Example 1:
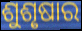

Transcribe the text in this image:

ଶୁଶୃଷାର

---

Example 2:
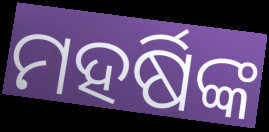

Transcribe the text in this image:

ମହର୍ଷିଙ୍କ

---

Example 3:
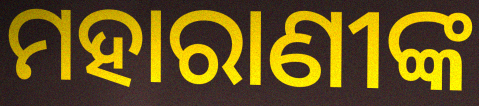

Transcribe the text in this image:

ମହାରାଣୀଙ୍କ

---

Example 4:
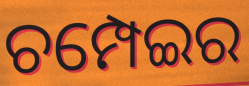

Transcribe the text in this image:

ଚମ୍ପେଇର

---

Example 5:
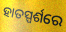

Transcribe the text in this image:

ହାତସ୍ପର୍ଶରେ